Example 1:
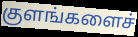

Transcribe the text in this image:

குளங்களைச்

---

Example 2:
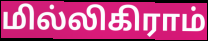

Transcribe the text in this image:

மில்லிகிராம்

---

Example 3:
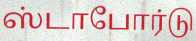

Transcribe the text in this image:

ஸ்டாபோர்டு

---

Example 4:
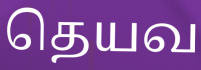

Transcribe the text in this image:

தெயவ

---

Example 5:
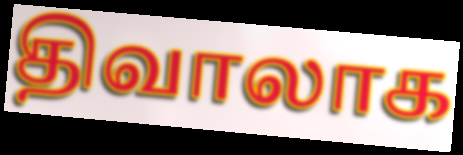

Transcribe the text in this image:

திவாலாக